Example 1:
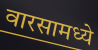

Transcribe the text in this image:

वारसामध्ये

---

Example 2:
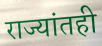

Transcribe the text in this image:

राज्यांतही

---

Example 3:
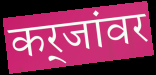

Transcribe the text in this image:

कर्जांवर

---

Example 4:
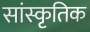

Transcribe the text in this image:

सांस्कृतिक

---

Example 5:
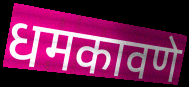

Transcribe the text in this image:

धमकावणे